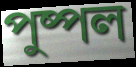
পুষ্পল